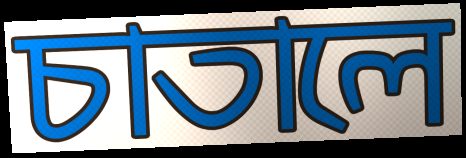
চাতালে